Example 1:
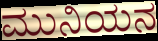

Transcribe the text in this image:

ಮುನಿಯನ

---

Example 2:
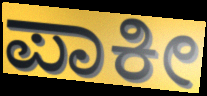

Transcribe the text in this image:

ಪಾಕೀ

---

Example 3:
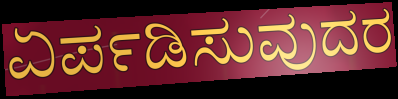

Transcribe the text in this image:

ಏರ್ಪಡಿಸುವುದರ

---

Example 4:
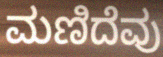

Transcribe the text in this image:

ಮಣಿದೆವು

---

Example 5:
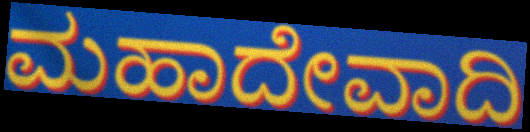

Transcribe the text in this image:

ಮಹಾದೇವಾದಿ